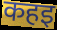
कहइ